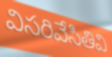
విసరివేసితివి